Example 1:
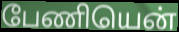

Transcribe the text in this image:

பேணியென்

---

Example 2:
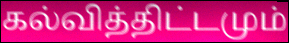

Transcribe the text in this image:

கல்வித்திட்டமும்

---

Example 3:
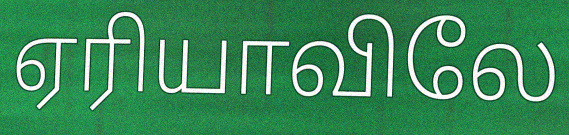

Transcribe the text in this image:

ஏரியாவிலே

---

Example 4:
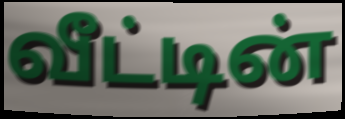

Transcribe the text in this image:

வீட்டின்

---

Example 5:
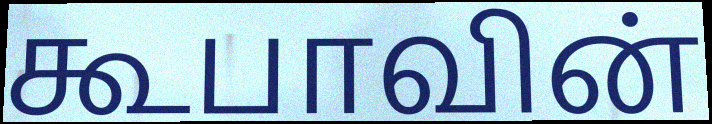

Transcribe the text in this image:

கூபாவின்